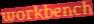
workbench